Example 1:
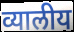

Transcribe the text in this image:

व्यालीय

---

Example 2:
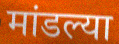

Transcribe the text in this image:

मांडल्या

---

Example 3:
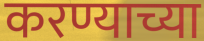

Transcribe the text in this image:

करण्याच्या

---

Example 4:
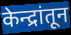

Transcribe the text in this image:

केन्द्रांतून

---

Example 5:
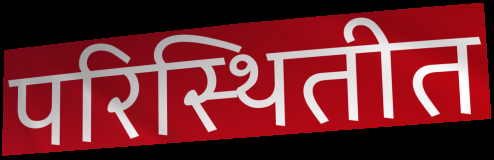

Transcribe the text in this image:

परिस्थितीत